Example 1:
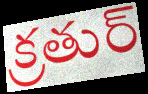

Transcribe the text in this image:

క్రతుర్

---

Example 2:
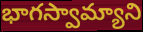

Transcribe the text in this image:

భాగస్వామ్యాని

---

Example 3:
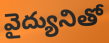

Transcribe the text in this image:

వైద్యునితో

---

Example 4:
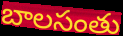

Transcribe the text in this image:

బాలసంతు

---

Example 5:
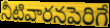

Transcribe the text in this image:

నీటివారనపెరిగే